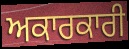
ਅਕਾਰਕਾਰੀ